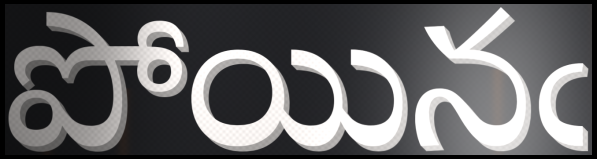
పోయినఁ